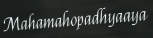
Mahamahopadhyaaya